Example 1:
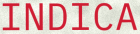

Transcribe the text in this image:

INDICA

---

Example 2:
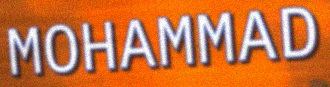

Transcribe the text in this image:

MOHAMMAD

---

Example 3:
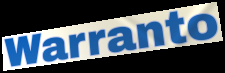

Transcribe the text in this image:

Warranto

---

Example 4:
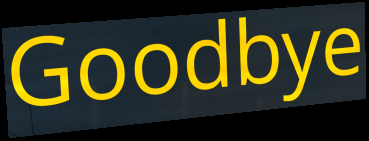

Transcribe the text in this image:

Goodbye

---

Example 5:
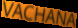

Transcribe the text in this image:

VACHANA